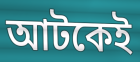
আটকেই